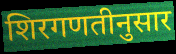
शिरगणतीनुसार